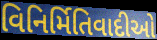
વિનિર્મિતિવાદીઓ